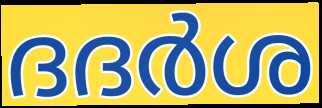
ദദർശ